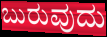
ಬುರುವುದು